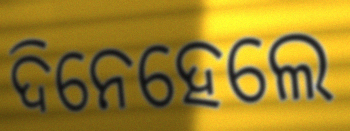
ଦିନେହେଲେ